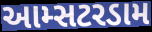
આમ્સટરડામ